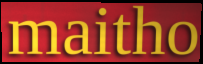
maitho